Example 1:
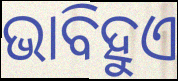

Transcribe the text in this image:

ଭାବିହୁଏ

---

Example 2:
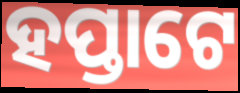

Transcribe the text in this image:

ହପ୍ତାଟେ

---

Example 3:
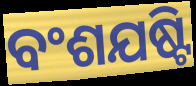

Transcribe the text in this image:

ବଂଶଯଷ୍ଟି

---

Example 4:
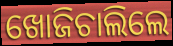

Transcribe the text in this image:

ଖୋଜିଚାଲିଲେ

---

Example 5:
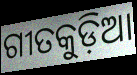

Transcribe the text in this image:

ଗୀତକୁଡ଼ିଆ